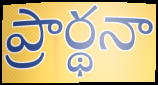
ప్రార్థనా